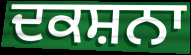
ਦਕਸ਼ਨਾ